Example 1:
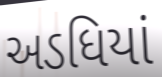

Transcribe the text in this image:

અડધિયાં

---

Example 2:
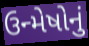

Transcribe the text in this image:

ઉન્મેષોનું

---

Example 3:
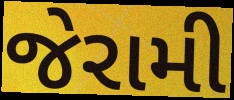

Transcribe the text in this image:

જેરામી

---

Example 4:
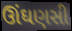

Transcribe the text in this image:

ઊંઘણસી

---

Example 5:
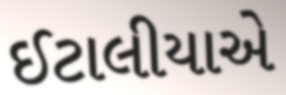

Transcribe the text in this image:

ઈટાલીયાએ